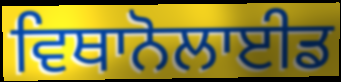
ਵਿਥਾਨੋਲਾਈਡ